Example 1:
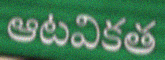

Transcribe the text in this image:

ఆటవికత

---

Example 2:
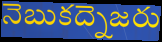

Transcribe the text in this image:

నెబుకద్నెజరు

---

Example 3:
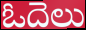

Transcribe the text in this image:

ఓదెలు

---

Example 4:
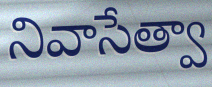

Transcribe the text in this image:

నివాసేత్వా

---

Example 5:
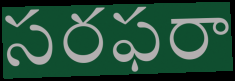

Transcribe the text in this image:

సరఫరా